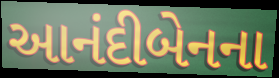
આનંદીબેનના